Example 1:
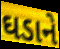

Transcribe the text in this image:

ઘડાને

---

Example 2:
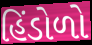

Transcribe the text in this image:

હિંડોળો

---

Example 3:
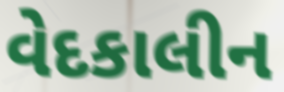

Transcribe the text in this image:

વેદકાલીન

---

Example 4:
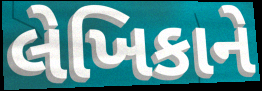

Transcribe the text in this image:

લેખિકાને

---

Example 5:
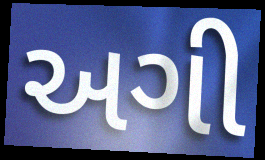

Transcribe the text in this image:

અગી